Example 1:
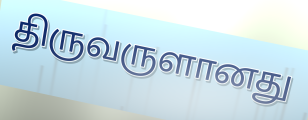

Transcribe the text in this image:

திருவருளானது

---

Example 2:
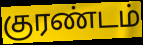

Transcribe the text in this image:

குரண்டம்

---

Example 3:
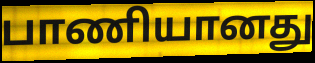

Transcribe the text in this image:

பாணியானது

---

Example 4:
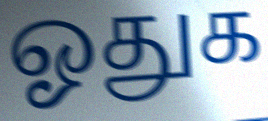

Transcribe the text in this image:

ஓதுக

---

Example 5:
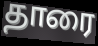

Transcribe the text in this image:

தாரை